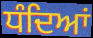
ਧੰਦਿਆਂ